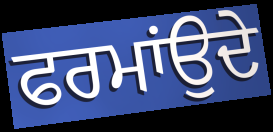
ਫਰਮਾਂਉਦੇ